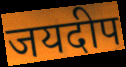
जयदीप